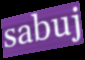
sabuj